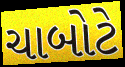
ચાબોટે